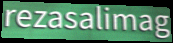
rezasalimag